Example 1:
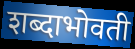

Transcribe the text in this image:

शब्दाभोवती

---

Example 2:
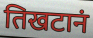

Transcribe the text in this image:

तिखटानं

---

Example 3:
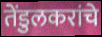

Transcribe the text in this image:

तेंडुलकरांचे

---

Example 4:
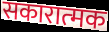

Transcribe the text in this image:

सकारात्‍मक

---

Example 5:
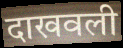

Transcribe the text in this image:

दाखवली